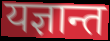
यज्ञान्त